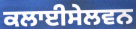
ਕਲਾਈਸੇਲਵਨ